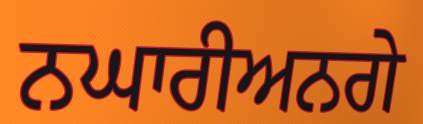
ਨਘਾਰੀਅਨਗੇ